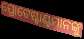
ପ୍ରୋଟେଷ୍ଟାଣ୍ଟମାନଙ୍କୁ